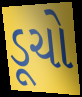
ડૂચો